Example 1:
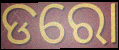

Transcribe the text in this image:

ଡରୋ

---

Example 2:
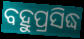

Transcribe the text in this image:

ବହୁପ୍ରସିଦ୍ଧ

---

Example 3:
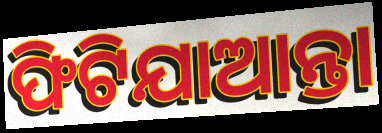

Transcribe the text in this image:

ଫିଟିଯାଆନ୍ତା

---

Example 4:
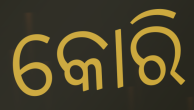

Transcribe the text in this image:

କୋରି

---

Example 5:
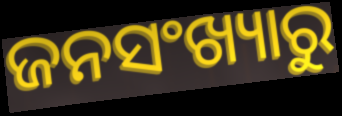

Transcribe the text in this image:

ଜନସଂଖ୍ୟାରୁ